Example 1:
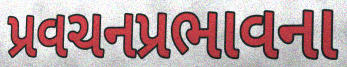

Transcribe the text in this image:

પ્રવચનપ્રભાવના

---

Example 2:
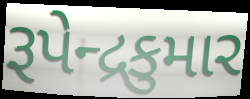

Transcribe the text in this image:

રૂપેન્દ્રકુમાર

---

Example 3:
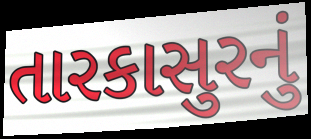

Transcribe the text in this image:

તારકાસુરનું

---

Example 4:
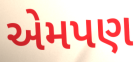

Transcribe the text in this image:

એમપણ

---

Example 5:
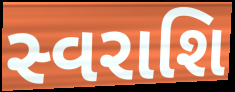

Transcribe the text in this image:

સ્વરાશિ